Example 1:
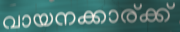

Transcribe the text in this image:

വായനക്കാര്ക്ക്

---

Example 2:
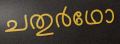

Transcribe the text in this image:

ചതുർഥോ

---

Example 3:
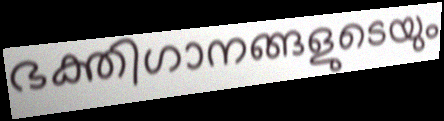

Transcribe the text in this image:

ഭക്തിഗാനങ്ങളുടെയും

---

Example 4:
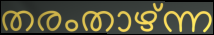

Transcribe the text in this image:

തരംതാഴ്ന്ന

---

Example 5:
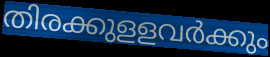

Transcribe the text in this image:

തിരക്കുളളവർക്കും